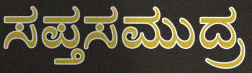
ಸಪ್ತಸಮುದ್ರ